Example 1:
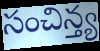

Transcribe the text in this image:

సంచిన్త్య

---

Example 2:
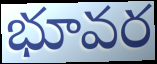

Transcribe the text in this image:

భూవర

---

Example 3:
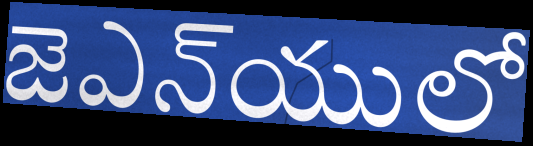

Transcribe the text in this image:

జెఎన్‌యులో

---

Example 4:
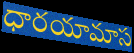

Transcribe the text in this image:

ధారయామాస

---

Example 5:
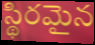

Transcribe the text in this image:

స్థిరమైన